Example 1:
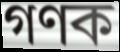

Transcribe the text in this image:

গণক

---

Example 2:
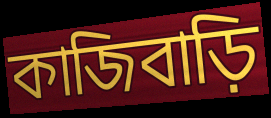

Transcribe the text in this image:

কাজিবাড়ি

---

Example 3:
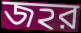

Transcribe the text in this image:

জহর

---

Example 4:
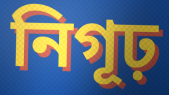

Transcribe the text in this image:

নিগূঢ়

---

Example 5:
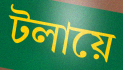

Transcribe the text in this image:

টলায়ে